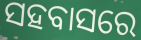
ସହବାସରେ